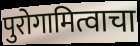
पुरोगामित्वाचा